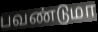
பவண்டுமா